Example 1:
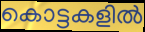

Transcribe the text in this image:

കൊട്ടകളിൽ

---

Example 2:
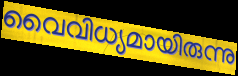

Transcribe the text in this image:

വൈവിധ്യമായിരുന്നു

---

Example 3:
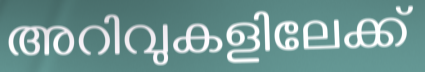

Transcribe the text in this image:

അറിവുകളിലേക്ക്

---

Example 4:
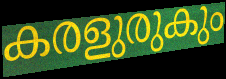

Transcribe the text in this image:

കരളുരുകും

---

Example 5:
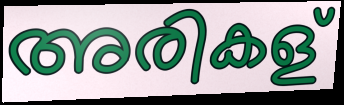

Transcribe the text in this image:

അരികള്